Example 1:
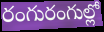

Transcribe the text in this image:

రంగురంగుల్లో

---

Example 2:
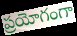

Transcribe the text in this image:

ప్రయోగంగా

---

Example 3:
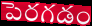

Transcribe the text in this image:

పెరగడం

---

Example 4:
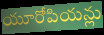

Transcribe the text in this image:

యూరోపియన్లు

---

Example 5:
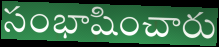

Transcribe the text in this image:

సంభాషించారు